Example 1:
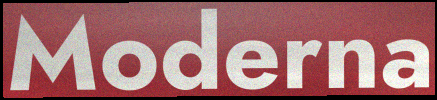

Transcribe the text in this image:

Moderna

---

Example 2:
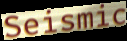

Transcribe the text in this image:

Seismic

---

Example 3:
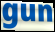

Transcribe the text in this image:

gun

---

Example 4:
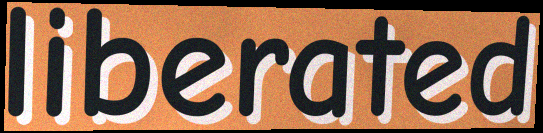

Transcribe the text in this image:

liberated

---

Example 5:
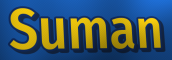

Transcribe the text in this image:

Suman